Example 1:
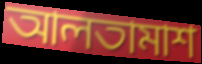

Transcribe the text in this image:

আলতামাশ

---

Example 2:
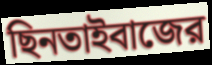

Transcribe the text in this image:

ছিনতাইবাজের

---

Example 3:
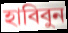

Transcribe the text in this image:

হাবিবুন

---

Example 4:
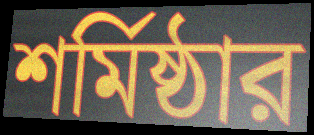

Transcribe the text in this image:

শর্মিষ্ঠার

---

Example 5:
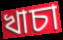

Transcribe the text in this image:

খাচা